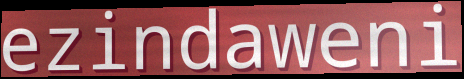
ezindaweni